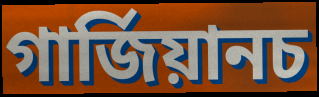
গাৰ্জিয়ানচ